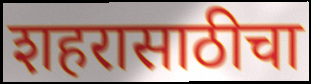
शहरासाठीचा